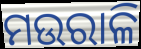
ମଉରାଳି